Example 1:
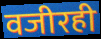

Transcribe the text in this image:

वजीरही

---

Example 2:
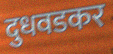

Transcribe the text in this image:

दुधवडकर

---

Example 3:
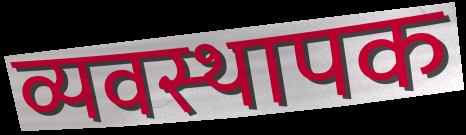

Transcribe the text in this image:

व्यवस्थापक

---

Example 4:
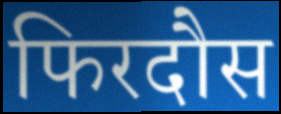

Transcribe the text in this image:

फिरदौस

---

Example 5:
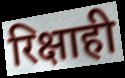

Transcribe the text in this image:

रिक्षाही